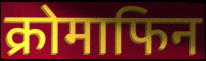
क्रोमाफिन